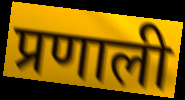
प्रणाली